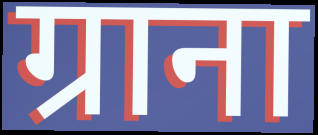
ग्राना